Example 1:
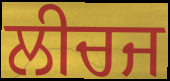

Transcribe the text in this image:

ਲੀਚਜ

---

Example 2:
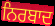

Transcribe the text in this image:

ਨਿਰਬਾਦ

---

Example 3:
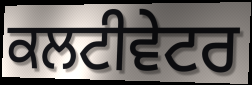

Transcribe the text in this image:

ਕਲਟੀਵੇਟਰ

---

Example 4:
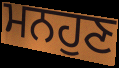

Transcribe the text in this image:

ਮਨਹੁਣ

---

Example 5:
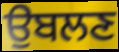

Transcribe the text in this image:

ਉਬਲਣ